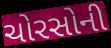
ચોરસોની